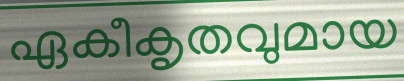
ഏകീകൃതവുമായ